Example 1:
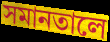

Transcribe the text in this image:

সমানতালে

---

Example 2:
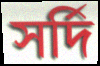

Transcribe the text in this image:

সর্দি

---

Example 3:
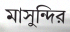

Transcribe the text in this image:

মাসুন্দির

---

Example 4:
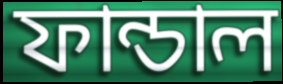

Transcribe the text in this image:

ফান্ডাল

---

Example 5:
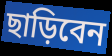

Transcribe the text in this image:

ছাড়িবেন